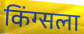
किंग्सला